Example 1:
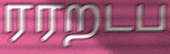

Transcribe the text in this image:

ரரறடப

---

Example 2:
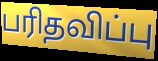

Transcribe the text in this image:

பரிதவிப்பு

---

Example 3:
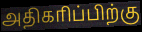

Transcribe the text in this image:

அதிகரிப்பிற்கு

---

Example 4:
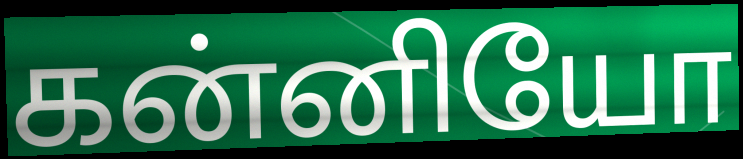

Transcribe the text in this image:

கன்னியோ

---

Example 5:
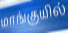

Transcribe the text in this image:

மாங்குயில்